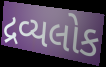
દ્રવ્યલોક